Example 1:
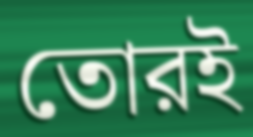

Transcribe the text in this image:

তোরই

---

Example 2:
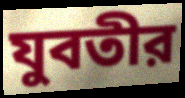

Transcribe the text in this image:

যুবতীর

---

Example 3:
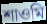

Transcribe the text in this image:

শাওমি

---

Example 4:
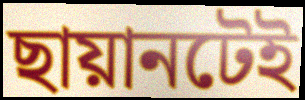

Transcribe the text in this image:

ছায়ানটেই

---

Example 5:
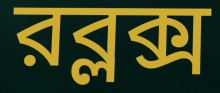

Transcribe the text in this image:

রব্লক্স